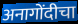
अनागोंदीचा